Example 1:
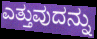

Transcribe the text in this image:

ಎತ್ತುವುದನ್ನು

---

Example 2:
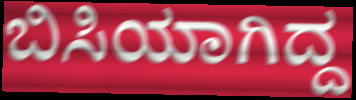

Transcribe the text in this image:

ಬಿಸಿಯಾಗಿದ್ದ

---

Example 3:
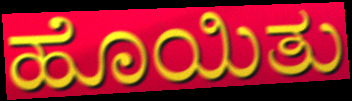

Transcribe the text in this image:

ಹೊಯಿತು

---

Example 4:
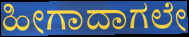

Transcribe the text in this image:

ಹೀಗಾದಾಗಲೇ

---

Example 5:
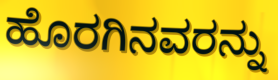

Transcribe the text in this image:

ಹೊರಗಿನವರನ್ನು